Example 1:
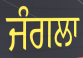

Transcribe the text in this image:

ਜੰਗਲਾ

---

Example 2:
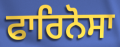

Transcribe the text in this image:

ਫਾਰਿਨੋਸਾ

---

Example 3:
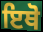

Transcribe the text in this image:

ਇਥੋ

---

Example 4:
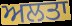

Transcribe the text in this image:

ਅਲਤਾ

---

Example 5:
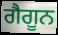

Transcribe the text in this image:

ਗੈਗੂਨ